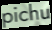
pichu